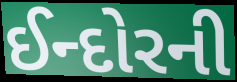
ઈન્દોરની